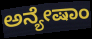
ಅನ್ಯೇಷಾಂ